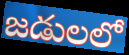
జడులలో